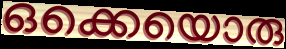
ഒക്കെയൊരു